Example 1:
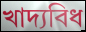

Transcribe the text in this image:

খাদ্যবিধ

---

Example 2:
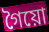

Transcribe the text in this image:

গৈয়ো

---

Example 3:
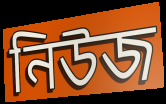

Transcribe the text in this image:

নিউজ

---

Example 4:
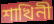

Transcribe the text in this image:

শাখিনী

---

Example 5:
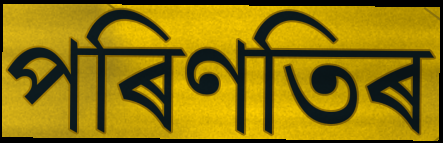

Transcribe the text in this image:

পৰিণতিৰ